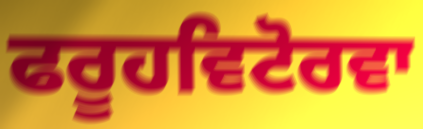
ਫਰੂਹਵਿਟੋਰਵਾ